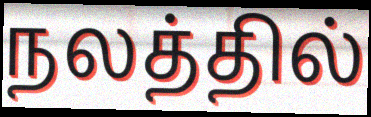
நலத்தில்